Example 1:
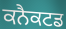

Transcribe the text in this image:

ਕਨੈਕਟਡ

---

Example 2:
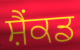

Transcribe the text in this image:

ਸ਼ੈਂਕਡ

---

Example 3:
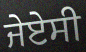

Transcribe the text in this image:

ਜੇਏਸੀ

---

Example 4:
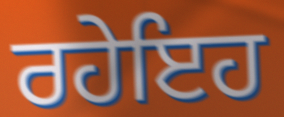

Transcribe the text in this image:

ਰਹੇਇਹ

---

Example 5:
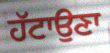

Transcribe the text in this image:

ਹੱਟਾਉਣਾ